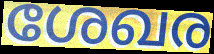
ശേഖര